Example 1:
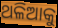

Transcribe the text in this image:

ଥଳିଆକୁ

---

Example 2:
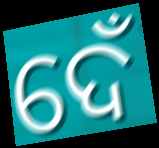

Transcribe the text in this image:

ଦେଁ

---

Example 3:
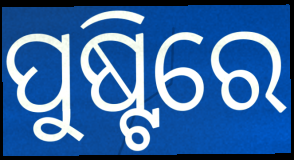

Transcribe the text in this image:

ପୁଷ୍ଟିରେ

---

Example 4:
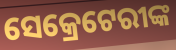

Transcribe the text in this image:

ସେକ୍ରେଟେରୀଙ୍କ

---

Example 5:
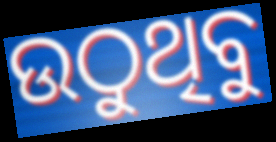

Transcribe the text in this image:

ଉଠୁଥିବୁ